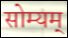
सोम्यम्